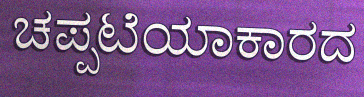
ಚಪ್ಪಟೆಯಾಕಾರದ